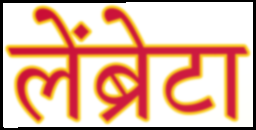
लेंब्रेटा